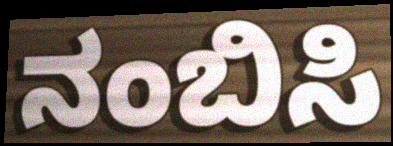
ನಂಬಿಸಿ